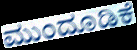
ಮುಂದೂಡಿಕೆ